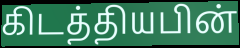
கிடத்தியபின்